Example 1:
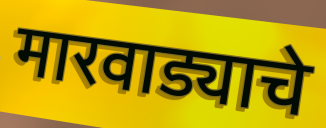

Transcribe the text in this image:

मारवाड्याचे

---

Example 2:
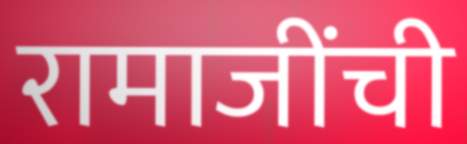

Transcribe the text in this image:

रामाजींची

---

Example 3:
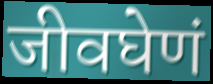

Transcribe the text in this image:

जीवघेणं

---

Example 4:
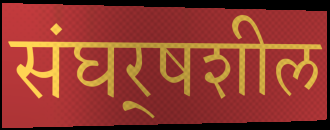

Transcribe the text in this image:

संघर्षशील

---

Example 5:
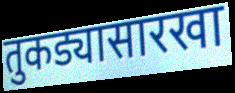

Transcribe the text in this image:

तुकड्यासारखा